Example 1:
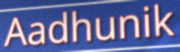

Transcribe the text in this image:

Aadhunik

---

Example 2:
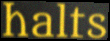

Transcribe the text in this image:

halts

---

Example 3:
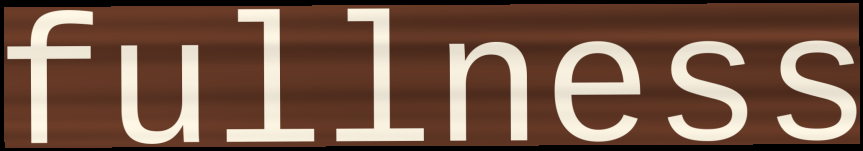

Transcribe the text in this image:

fullness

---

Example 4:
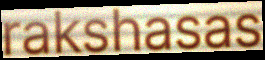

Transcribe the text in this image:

rakshasas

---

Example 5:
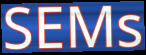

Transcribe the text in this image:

SEMs